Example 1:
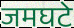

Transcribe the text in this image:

जमघटे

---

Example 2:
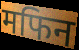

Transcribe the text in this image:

मफिन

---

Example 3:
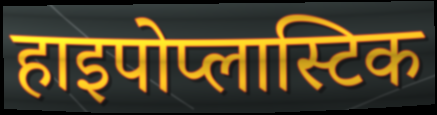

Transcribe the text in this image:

हाइपोप्लास्टिक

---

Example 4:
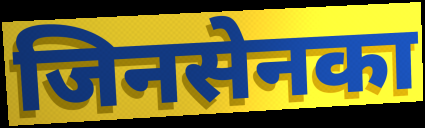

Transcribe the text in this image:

जिनसेनका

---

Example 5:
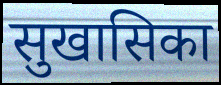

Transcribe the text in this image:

सुखासिका